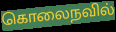
கொலைநவில்